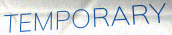
TEMPORARY